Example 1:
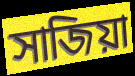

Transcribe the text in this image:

সাজিয়া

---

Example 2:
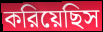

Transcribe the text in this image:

করিয়েছিস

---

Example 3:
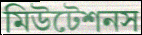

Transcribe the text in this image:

মিউটেশনস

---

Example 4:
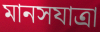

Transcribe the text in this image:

মানসযাত্রা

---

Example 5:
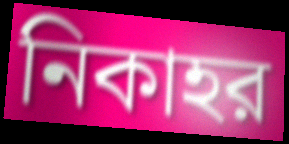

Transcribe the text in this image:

নিকাহর